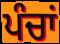
ਪੰਚਾਂ